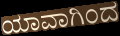
ಯಾವಾಗಿಂದ